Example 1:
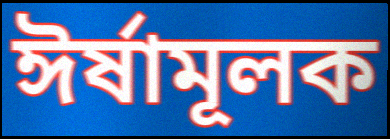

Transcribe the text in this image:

ঈর্ষামূলক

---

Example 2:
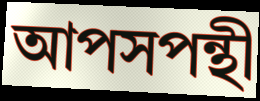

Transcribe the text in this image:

আপসপন্থী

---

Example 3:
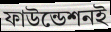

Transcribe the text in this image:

ফাউন্ডেশনই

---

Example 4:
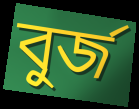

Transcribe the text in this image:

বুর্জ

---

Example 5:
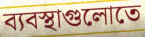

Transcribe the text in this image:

ব্যবস্থাগুলোতে